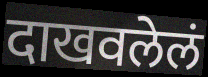
दाखवलेलं